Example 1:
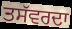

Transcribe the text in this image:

ਤਸੱਵਰਦਾ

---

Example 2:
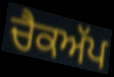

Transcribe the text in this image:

ਚੈਕਅੱਪ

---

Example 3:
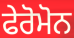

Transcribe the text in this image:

ਫੇਰੋਮੋਨ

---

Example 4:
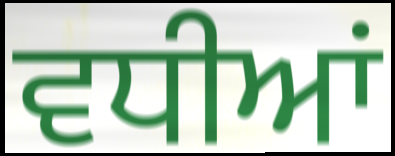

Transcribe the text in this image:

ਵਧੀਆਂ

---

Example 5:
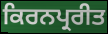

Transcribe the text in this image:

ਕਿਰਨਪ੍ਰਰੀਤ